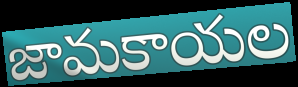
జామకాయల